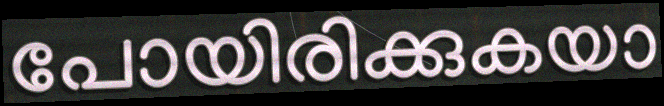
പോയിരിക്കുകയാ